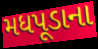
મધપૂડાના